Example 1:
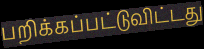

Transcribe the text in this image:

பறிக்கப்பட்டுவிட்டது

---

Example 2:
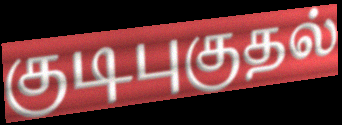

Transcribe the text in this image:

குடிபுகுதல்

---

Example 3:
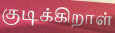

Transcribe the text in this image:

குடிக்கிறாள்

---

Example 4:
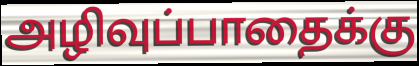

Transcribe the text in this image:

அழிவுப்பாதைக்கு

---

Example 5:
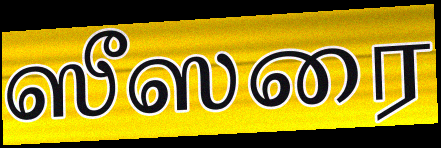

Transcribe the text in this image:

ஸீஸரை